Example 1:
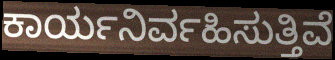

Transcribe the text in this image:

ಕಾರ್ಯನಿರ್ವಹಿಸುತ್ತಿವೆ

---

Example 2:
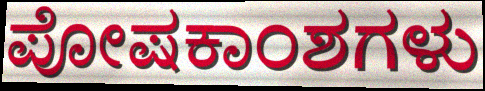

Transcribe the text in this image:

ಪೋಷಕಾಂಶಗಳು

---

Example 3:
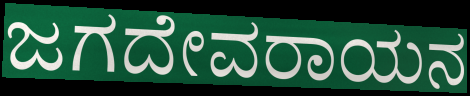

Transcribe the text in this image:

ಜಗದೇವರಾಯನ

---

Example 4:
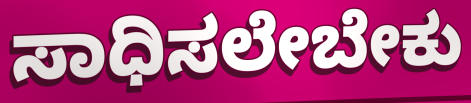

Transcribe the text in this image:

ಸಾಧಿಸಲೇಬೇಕು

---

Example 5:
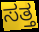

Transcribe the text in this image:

ಸತ್ತ